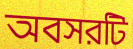
অবসরটি